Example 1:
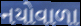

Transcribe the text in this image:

નયોવાળા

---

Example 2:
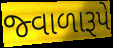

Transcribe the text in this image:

જ્વાળારૂપે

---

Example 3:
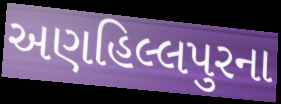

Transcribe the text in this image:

અણહિલ્લપુરના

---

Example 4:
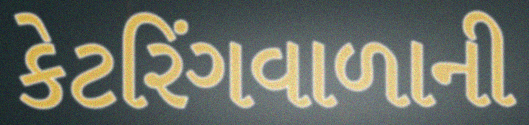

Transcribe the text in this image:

કેટરિંગવાળાની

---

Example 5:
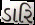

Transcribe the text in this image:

ડારિ